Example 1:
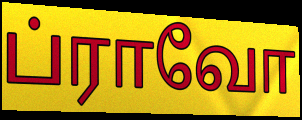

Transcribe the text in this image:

ப்ராவோ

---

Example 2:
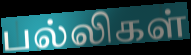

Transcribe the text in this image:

பல்லிகள்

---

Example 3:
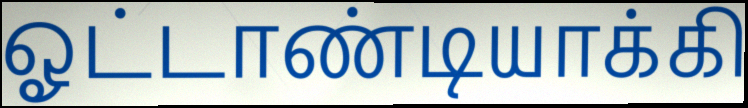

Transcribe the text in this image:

ஓட்டாண்டியாக்கி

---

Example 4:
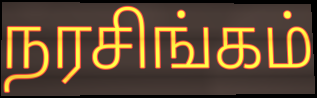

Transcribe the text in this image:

நரசிங்கம்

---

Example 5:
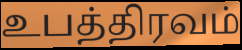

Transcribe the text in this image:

உபத்திரவம்